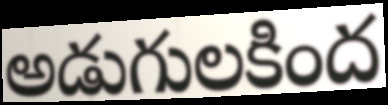
అడుగులకింద